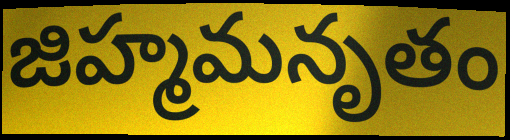
జిహ్మమనృతం